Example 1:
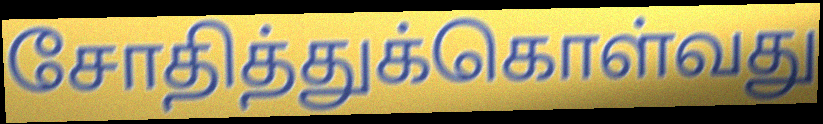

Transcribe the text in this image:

சோதித்துக்கொள்வது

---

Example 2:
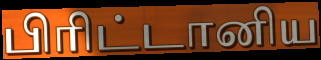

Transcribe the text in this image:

பிரிட்டானிய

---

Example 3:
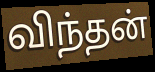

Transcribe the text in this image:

விந்தன்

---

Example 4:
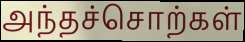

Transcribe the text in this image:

அந்தச்சொற்கள்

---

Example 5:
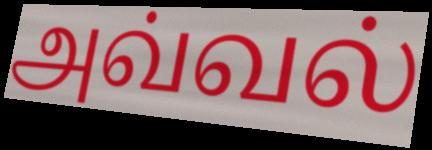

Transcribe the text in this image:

அவ்வல்